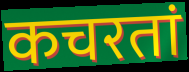
कचरतां